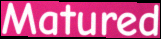
Matured